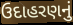
ઉદાહરણનું